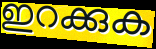
ഇറക്കുക